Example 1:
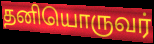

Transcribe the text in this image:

தனியொருவர்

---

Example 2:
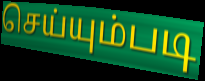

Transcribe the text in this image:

செய்யும்படி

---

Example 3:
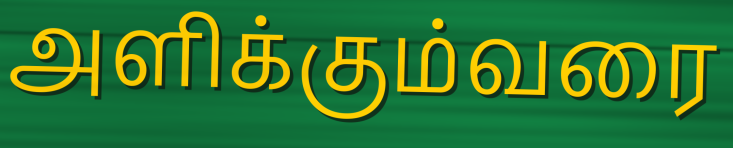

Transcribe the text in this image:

அளிக்கும்வரை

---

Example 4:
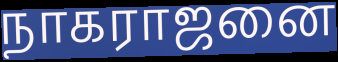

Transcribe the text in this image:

நாகராஜனை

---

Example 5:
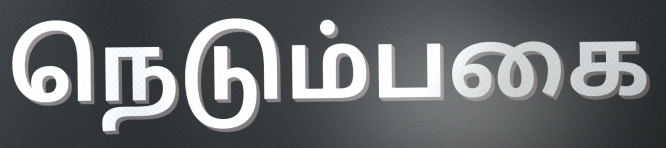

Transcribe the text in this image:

நெடும்பகை